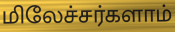
மிலேச்சர்களாம்